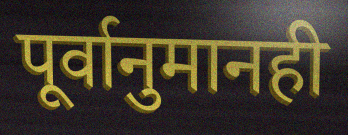
पूर्वानुमानही